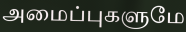
அமைப்புகளுமே